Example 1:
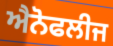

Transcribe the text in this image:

ਐਨੋਫਲੀਜ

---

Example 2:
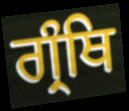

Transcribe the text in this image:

ਗ੍ਰੰਥਿ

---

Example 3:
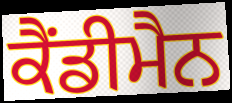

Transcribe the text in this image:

ਕੈਂਡੀਮੈਨ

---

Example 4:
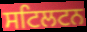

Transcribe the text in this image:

ਸਟਿਲਟਨ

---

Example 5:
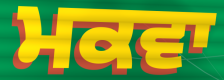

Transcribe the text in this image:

ਮਕਵਾ